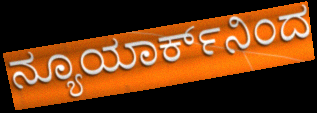
ನ್ಯೂಯಾರ್ಕ್‌ನಿಂದ